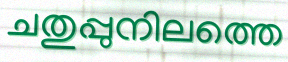
ചതുപ്പുനിലത്തെ